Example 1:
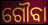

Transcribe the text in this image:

ଗୌବା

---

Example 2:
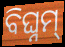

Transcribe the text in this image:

ବିଘ୍ନମ୍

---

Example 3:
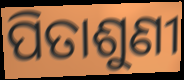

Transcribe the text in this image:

ପିତାଶୁଣୀ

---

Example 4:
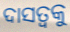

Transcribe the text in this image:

ଦାସତ୍ୱକୁ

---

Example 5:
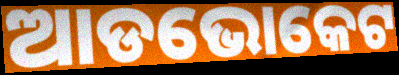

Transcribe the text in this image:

ଆଡଭୋକେଟ